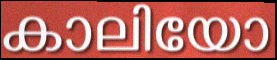
കാലിയോ